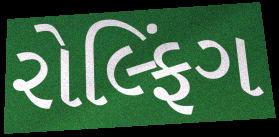
રોલ્ફિંગ